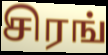
சிரங்